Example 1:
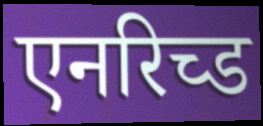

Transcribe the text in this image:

एनरिच्ड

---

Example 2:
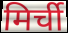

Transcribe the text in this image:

मिर्ची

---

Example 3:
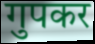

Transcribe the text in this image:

गुपकर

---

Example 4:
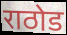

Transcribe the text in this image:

राठोड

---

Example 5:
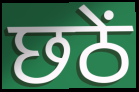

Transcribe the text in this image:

छठें